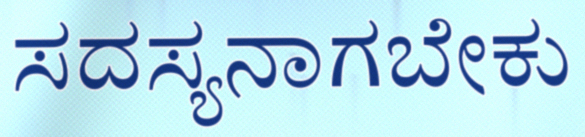
ಸದಸ್ಯನಾಗಬೇಕು